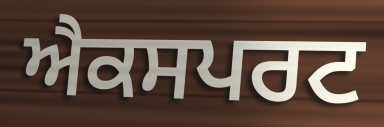
ਐਕਸਪਰਟ